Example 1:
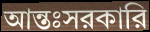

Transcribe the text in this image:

আন্তঃসরকারি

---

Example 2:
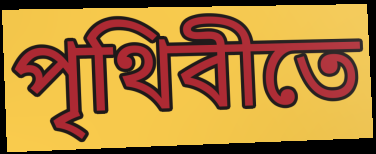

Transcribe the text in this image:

পৃথিবীতে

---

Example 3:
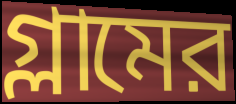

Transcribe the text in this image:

গ্লামের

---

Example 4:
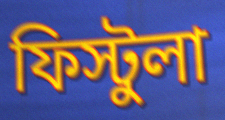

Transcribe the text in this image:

ফিস্টুলা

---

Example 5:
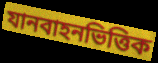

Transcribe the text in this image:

যানবাহনভিত্তিক